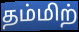
தம்மிற்